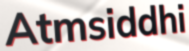
Atmsiddhi